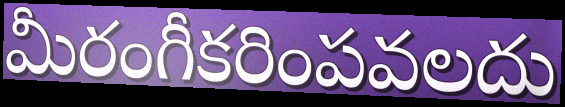
మీరంగీకరింపవలదు